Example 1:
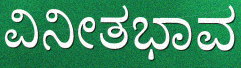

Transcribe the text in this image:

ವಿನೀತಭಾವ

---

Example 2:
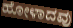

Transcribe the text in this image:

ಹೋಳಾದವು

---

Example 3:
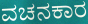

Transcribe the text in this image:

ವಚನಕಾರ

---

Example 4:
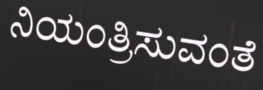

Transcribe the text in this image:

ನಿಯಂತ್ರಿಸುವಂತೆ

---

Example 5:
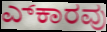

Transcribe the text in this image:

ಎ್‍ಕಾರವು